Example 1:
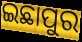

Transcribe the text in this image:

ଇଛାପୁର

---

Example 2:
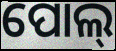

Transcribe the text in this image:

ପୋଲ୍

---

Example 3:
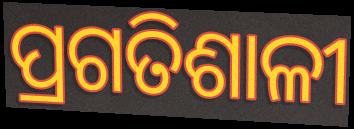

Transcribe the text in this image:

ପ୍ରଗତିଶାଳୀ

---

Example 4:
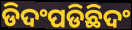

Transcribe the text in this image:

ଡିଦଂପଡିଛିଦଂ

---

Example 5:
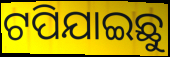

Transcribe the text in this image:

ଟପିଯାଇଛୁ